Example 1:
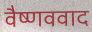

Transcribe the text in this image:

वैष्णववाद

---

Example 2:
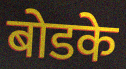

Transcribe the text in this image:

बोडके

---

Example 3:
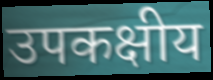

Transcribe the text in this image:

उपकक्षीय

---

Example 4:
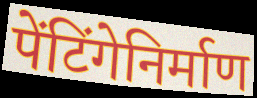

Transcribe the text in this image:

पेंटिंगेनिर्माण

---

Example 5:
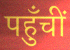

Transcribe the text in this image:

पहुँचीं